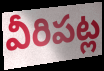
వీరిపట్ల